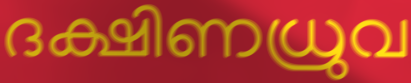
ദക്ഷിണധ്രുവ